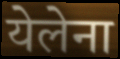
येलेना